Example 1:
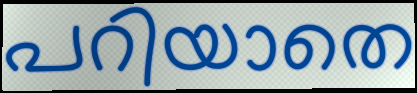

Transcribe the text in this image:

പറിയാതെ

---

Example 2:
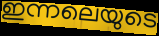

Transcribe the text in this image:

ഇന്നലെയുടെ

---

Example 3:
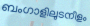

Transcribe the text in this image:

ബംഗാളിലുടനീളം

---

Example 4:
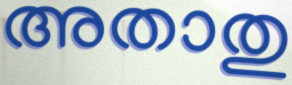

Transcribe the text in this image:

അതാതു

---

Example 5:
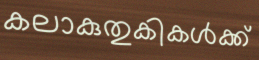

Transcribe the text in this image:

കലാകുതുകികൾക്ക്